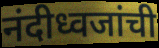
नंदीध्वजांची